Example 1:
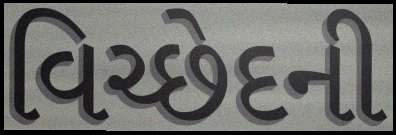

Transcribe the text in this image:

વિચ્છેદની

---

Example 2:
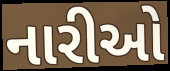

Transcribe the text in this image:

નારીઓ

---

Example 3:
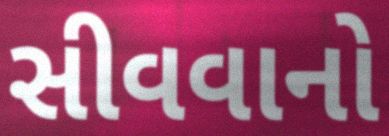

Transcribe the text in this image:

સીવવાનો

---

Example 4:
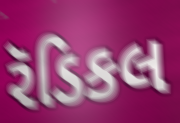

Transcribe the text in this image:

રૅડિકલ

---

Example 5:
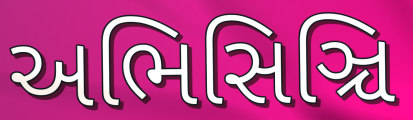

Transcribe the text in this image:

અભિસિઞ્ચિ